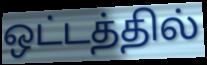
ஒட்டத்தில்